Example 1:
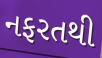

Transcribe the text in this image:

નફરતથી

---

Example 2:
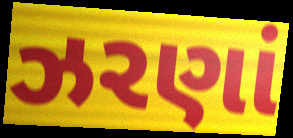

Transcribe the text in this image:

ઝરણાં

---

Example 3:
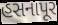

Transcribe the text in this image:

હસનાપૂર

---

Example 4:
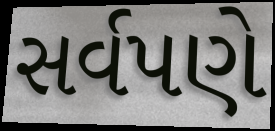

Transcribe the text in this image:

સર્વપણે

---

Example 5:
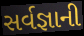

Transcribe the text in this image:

સર્વજ્ઞાની